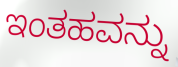
ಇಂತಹವನ್ನು